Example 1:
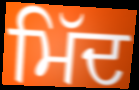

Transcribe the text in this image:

ਮਿੱਦ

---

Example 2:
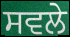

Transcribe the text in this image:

ਸਵਲੇ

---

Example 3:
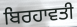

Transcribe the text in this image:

ਬਿਰਹਾਵਤੀ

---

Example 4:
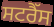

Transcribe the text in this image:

ਸਟਰੈੱਸ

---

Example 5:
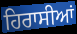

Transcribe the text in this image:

ਹਿਰਾਸੀਆਂ